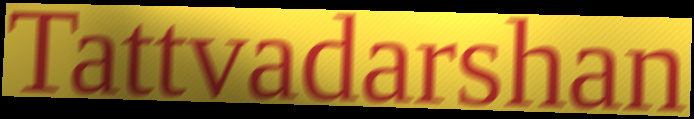
Tattvadarshan